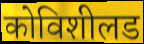
कोविशीलड